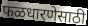
फळधारणेसाठी